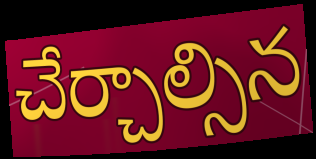
చేర్చాల్సిన